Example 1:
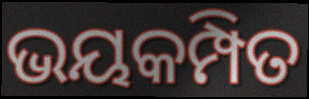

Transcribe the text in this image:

ଭୟକମ୍ପିତ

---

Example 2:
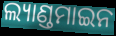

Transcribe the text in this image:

ଲ୍ୟାଣ୍ଡମାଇନ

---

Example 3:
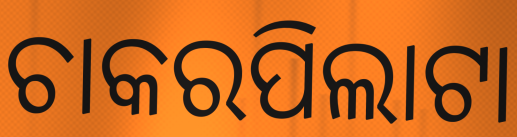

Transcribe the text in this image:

ଚାକରପିଲାଟା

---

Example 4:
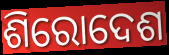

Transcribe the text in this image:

ଶିରୋଦେଶ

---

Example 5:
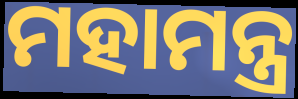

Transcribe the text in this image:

ମହାମନ୍ତ୍ର